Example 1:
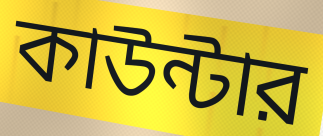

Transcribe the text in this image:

কাউন্টার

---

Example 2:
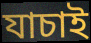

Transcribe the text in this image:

যাচাই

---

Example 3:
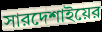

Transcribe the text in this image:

সারদেশাইয়ের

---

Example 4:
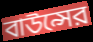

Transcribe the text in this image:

বাউন্সের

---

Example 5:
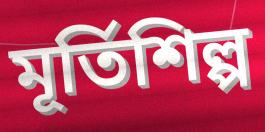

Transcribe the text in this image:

মূর্তিশিল্প